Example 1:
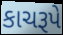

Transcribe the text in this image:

કાચરૂપે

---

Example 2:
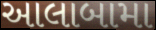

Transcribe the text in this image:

આલાબામા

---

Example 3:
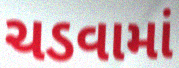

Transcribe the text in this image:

ચડવામાં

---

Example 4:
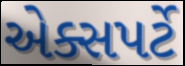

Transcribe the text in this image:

એક્સપર્ટે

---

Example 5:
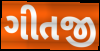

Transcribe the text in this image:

ગીતજી